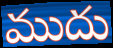
ముదు